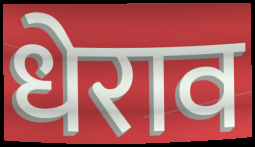
धेराव